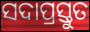
ସଦାପ୍ରସ୍ତୁତ